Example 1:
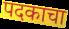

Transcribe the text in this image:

पदकाचा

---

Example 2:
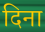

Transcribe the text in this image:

दिना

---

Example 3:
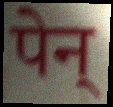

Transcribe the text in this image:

पेन्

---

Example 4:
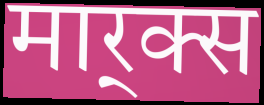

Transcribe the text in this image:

मार्क्स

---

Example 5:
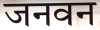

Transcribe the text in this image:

जनवन